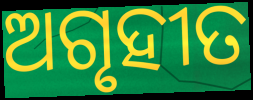
ଅଗୃହୀତ